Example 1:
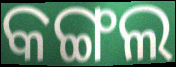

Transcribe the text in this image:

କଙ୍ଗଲ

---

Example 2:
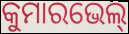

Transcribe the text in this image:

କୁମାରଭେଲ୍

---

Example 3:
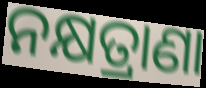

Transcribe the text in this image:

ନକ୍ଷତ୍ରାଣା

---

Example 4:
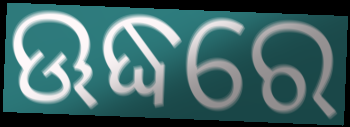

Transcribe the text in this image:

ଊଦ୍ଧରେ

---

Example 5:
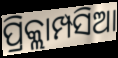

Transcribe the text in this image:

ପ୍ରିକ୍ଲାମ୍ପସିଆ